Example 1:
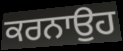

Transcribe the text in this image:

ਕਰਨਾਉਹ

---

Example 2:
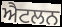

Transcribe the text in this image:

ਐਟਲਨ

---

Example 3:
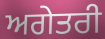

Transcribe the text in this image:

ਅਗੇਤਰੀ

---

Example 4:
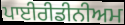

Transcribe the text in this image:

ਪਾਈਰੀਡੀਨੀਅਮ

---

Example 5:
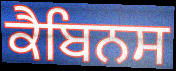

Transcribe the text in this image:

ਕੈਬਿਨਸ